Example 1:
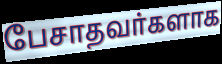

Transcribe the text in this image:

பேசாதவர்களாக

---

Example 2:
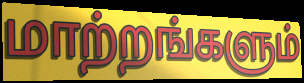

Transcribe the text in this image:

மாற்றங்களும்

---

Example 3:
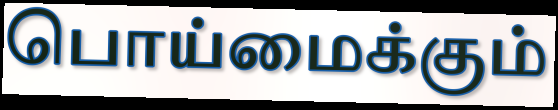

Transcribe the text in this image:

பொய்மைக்கும்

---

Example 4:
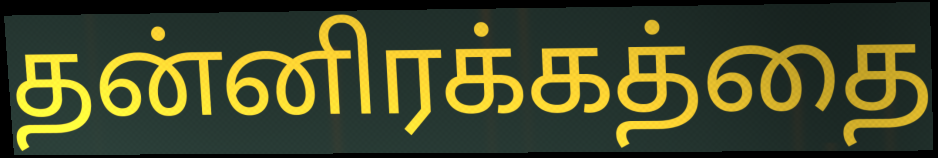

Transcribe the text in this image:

தன்னிரக்கத்தை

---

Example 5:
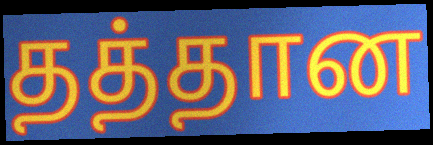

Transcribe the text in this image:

தத்தான